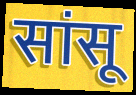
सांसू